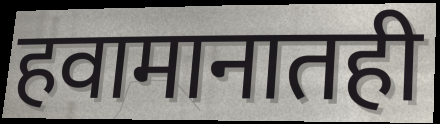
हवामानातही